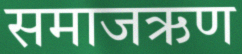
समाजऋण